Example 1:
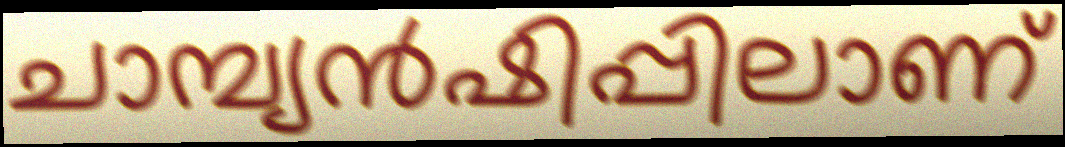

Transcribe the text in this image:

ചാമ്പ്യൻഷിപ്പിലാണ്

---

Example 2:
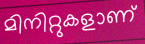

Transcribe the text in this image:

മിനിറ്റുകളാണ്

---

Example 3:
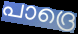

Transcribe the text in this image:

പാദ്രെ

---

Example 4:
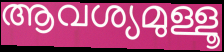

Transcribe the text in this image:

ആവശ്യമുള്ളൂ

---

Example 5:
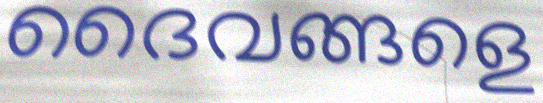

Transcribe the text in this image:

ദൈവങ്ങളെ